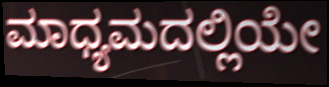
ಮಾಧ್ಯಮದಲ್ಲಿಯೇ